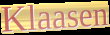
Klaasen